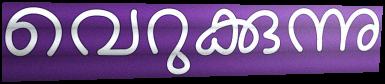
വെറുക്കുന്നു